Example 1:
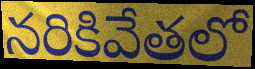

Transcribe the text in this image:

నరికివేతలో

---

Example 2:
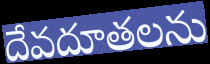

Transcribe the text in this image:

దేవదూతలను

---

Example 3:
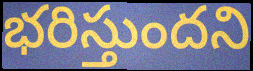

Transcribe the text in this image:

భరిస్తుందని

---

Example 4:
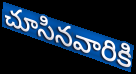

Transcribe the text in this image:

చూసినవారికి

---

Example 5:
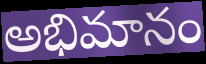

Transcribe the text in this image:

అభిమానం